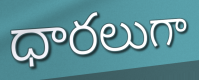
ధారలుగా